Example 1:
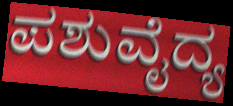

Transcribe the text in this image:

ಪಶುವೈದ್ಯ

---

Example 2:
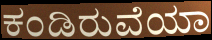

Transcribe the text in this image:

ಕಂಡಿರುವೆಯಾ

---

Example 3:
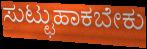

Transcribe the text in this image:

ಸುಟ್ಟುಹಾಕಬೇಕು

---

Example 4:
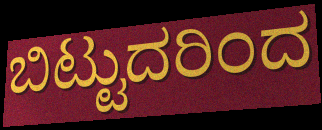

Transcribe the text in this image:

ಬಿಟ್ಟುದರಿಂದ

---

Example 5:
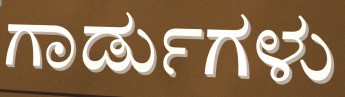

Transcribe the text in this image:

ಗಾರ್ಡುಗಳು